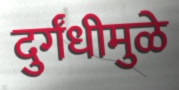
दुर्गंधीमुळे